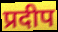
प्रदीप